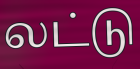
லட்டு